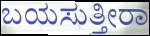
ಬಯಸುತ್ತೀರಾ